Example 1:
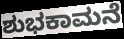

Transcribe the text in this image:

ಶುಭಕಾಮನೆ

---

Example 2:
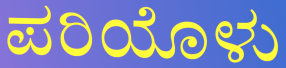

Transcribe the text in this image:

ಪರಿಯೊಳು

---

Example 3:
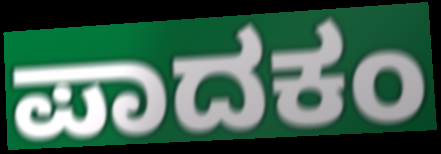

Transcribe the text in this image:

ಪಾದಕಂ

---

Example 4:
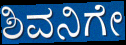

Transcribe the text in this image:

ಶಿವನಿಗೇ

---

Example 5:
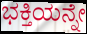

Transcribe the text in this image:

ಭಕ್ತಿಯನ್ನೇ